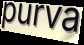
purva